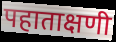
पहाताक्षणी